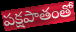
పక్షపాతంతో